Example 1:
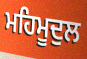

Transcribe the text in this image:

ਮਹਿਮੂਦੁਲ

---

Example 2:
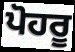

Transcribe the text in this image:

ਪੋਹਰੂ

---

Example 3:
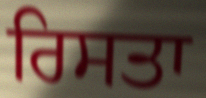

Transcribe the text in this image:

ਰਿਸਤਾ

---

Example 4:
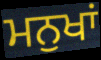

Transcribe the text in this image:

ਮਨੁਖਾਂ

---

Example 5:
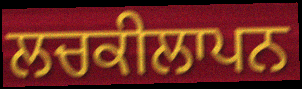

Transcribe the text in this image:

ਲਚਕੀਲਾਪਨ